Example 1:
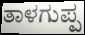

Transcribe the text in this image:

ತಾಳಗುಪ್ಪ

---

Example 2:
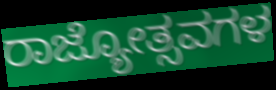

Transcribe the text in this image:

ರಾಜ್ಯೋತ್ಸವಗಳ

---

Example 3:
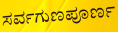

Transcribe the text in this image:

ಸರ್ವಗುಣಪೂರ್ಣ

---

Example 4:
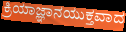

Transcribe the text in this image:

ಕ್ರಿಯಾಜ್ಞಾನಯುಕ್ತವಾದ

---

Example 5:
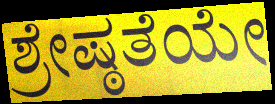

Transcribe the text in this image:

ಶ್ರೇಷ್ಠತೆಯೇ